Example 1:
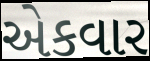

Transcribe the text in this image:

એકવાર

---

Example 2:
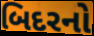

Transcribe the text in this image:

બિદરનો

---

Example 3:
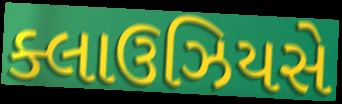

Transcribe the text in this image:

ક્લાઉઝિયસે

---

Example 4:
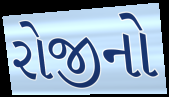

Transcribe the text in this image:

રોજીનો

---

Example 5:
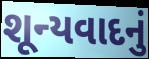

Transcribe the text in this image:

શૂન્યવાદનું